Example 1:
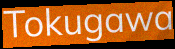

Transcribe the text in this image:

Tokugawa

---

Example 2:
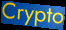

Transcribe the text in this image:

Crypto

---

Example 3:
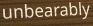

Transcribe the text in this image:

unbearably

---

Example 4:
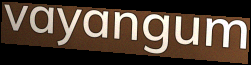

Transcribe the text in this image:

vayangum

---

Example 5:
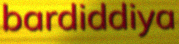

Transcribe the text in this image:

bardiddiya